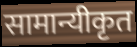
सामान्यीकृत